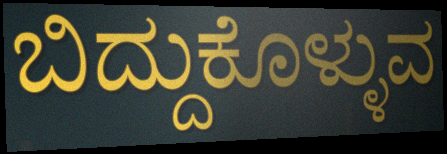
ಬಿದ್ದುಕೊಳ್ಳುವ